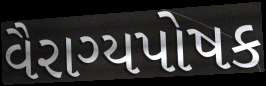
વૈરાગ્યપોષક